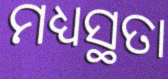
ମଧ୍ୟସ୍ଥତା